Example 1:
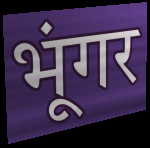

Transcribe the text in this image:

भूंगर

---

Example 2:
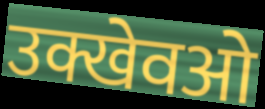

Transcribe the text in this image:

उक्खेवओ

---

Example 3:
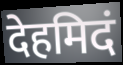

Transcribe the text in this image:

देहमिदं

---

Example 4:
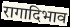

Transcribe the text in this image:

रागादिभाव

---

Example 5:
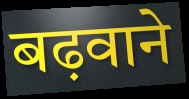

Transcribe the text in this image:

बढ़वाने